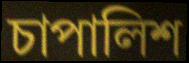
চাপালিশ